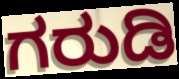
ಗರುಡಿ